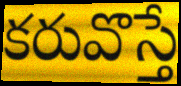
కరువొస్తే